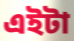
এইটা